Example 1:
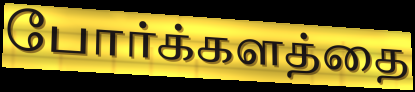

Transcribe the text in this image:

போர்க்களத்தை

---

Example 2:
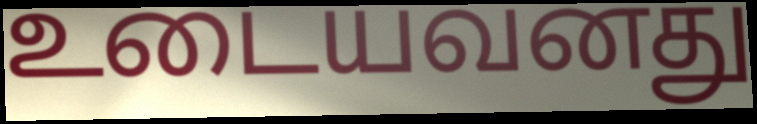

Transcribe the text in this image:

உடையவனது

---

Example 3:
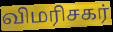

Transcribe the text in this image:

விமரிசகர்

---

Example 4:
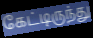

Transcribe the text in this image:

கேட்டிருந்து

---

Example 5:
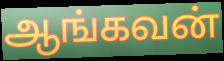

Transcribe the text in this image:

ஆங்கவன்